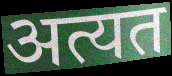
अत्यत